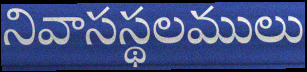
నివాసస్థలములు